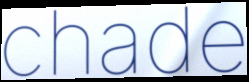
chade